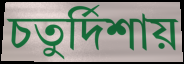
চতুর্দিশায়